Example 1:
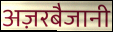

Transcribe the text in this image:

अज़रबैजानी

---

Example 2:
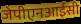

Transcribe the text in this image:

जेपीएनआईसी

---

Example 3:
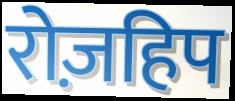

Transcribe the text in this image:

रोज़हिप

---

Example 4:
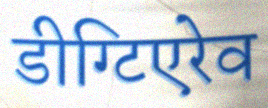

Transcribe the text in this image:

डीग्टिएरेव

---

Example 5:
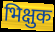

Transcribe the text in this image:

भिक्षुक